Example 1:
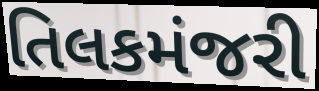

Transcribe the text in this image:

તિલકમંજરી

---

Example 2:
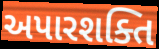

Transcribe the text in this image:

અપારશક્તિ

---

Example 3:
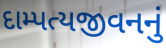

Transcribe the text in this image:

દામ્પત્યજીવનનું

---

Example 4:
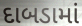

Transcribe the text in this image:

દાબડામાં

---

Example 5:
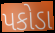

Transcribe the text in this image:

પકોડા